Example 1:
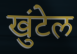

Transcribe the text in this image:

खुंटेल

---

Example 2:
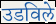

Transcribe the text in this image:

उडविले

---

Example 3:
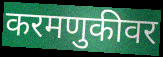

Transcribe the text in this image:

करमणुकीवर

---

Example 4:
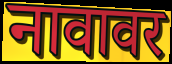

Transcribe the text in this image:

नावावर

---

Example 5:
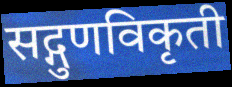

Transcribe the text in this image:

सद्गुणविकृती